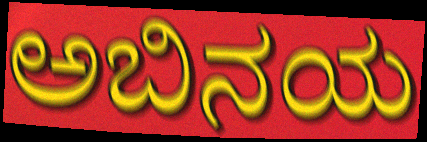
ಅಬಿನಯ